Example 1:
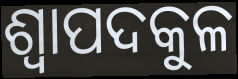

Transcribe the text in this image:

ଶ୍ୱାପଦକୁଳ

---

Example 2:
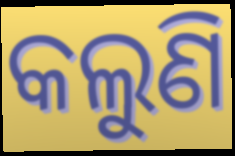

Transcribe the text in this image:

କଲୁଣି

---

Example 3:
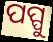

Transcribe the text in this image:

ପପ୍ପୁ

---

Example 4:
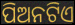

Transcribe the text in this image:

ପିଅନଟିଏ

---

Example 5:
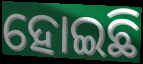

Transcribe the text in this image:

ହୋଇଛି